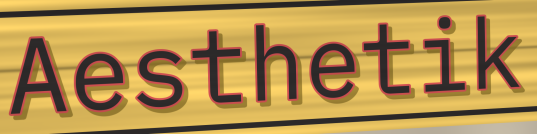
Aesthetik